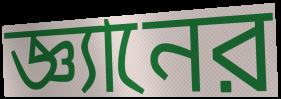
জ্ঞ্যানের